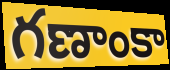
గణాంకా